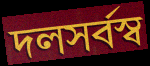
দলসর্বস্ব